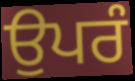
ਉਪਰੰ